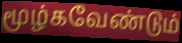
மூழ்கவேண்டும்